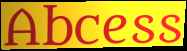
Abcess